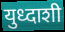
युध्दाशी